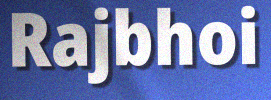
Rajbhoi